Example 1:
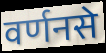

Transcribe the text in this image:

वर्णनसे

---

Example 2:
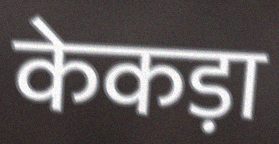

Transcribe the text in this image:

केकड़ा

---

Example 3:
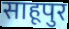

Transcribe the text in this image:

साहूपुर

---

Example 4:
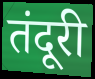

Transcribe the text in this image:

तंदूरी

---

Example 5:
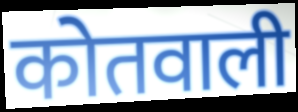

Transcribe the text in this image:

कोतवाली